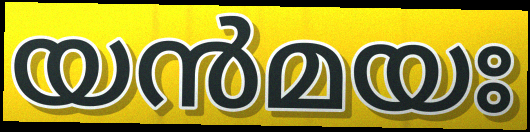
യൻമയഃ